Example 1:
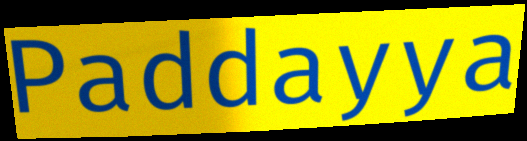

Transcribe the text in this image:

Paddayya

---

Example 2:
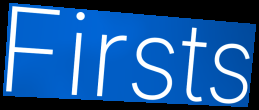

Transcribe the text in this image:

Firsts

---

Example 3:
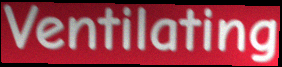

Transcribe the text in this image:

Ventilating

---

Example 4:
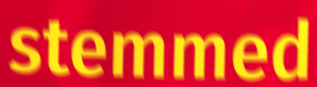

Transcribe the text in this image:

stemmed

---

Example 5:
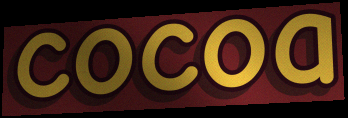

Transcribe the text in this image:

cocoa